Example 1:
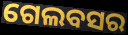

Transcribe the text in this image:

ଗେଲବସର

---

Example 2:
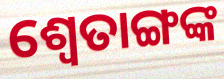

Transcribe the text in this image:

ଶ୍ୱେତାଙ୍ଗଙ୍କ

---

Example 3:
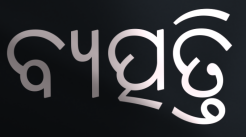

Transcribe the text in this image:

ବ୍ୟତ୍ପତ୍ତି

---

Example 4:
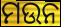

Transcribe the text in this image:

ମଉନ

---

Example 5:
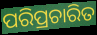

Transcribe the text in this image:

ପରିପ୍ରଚାରିତ